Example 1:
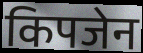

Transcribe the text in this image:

किपजेन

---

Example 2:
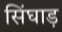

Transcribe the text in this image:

सिंघाड़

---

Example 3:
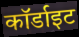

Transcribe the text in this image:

कॉर्डाइट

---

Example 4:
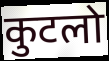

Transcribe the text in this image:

कुटलो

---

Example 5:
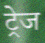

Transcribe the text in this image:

ट्रेज